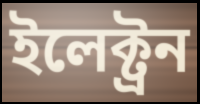
ইলেক্ট্রন